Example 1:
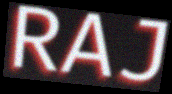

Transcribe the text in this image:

RAJ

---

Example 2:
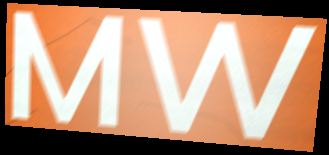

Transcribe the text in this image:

MW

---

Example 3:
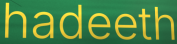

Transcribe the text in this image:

hadeeth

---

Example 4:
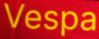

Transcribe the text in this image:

Vespa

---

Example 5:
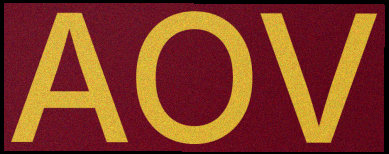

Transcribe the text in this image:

AOV